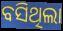
ବସିଥିଲା